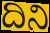
ದಿನಿ